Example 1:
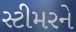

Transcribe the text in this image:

સ્ટીમરને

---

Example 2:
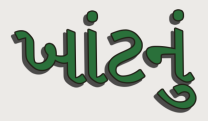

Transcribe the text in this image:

ખાંટનું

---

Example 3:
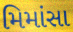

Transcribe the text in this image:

મિમાંસા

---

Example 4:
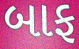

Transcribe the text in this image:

બાફ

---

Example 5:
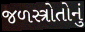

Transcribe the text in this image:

જળસ્ત્રોતોનું